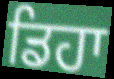
ਡਿਹਾ